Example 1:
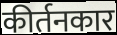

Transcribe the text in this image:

कीर्तनकार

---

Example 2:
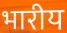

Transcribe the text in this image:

भारीय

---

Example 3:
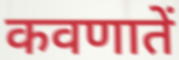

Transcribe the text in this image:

कवणातें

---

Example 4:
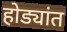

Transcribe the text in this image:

होड्यांत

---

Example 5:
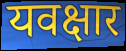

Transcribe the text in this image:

यवक्षार